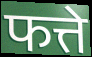
फत्ते